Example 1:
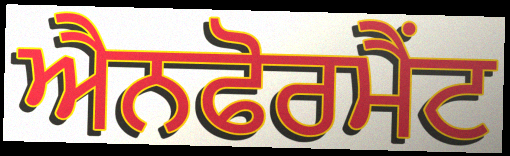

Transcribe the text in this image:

ਐਨਫੋਰਮੈਂਟ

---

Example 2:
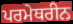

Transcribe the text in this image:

ਪਰਮੇਥਰੀਨ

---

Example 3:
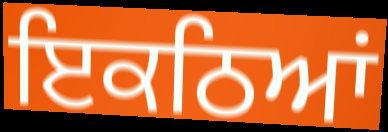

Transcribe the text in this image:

ਇਕਠਿਆਂ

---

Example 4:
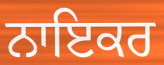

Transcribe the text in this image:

ਨਾਇਕਰ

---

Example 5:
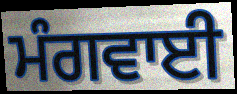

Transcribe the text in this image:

ਮੰਗਵਾਈ